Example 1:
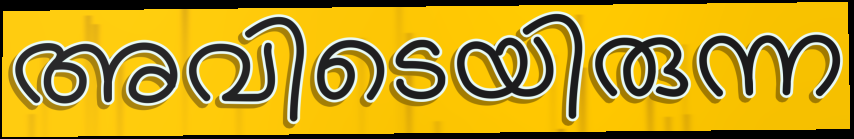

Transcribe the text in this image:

അവിടെയിരുന്ന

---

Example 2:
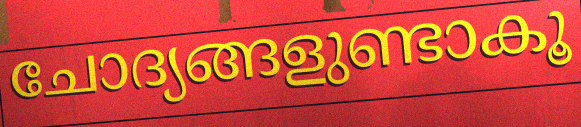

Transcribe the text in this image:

ചോദ്യങ്ങളുണ്ടാകൂ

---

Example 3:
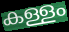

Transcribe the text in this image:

കള്ളം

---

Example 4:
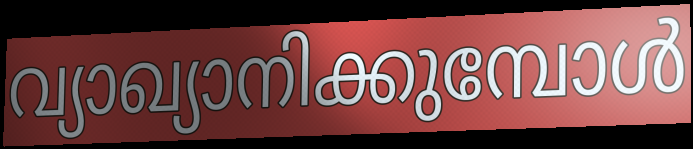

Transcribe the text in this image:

വ്യാഖ്യാനിക്കുമ്പോൾ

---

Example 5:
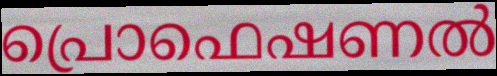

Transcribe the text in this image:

പ്രൊഫെഷണൽ